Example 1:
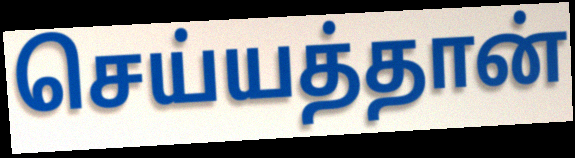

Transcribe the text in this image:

செய்யத்தான்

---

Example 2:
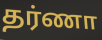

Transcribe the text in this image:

தர்ணா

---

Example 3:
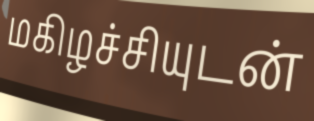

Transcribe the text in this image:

மகிழச்சியுடன்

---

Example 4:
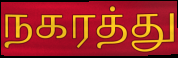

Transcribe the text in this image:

நகரத்து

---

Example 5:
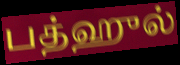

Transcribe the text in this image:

பத்ஹுல்